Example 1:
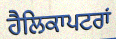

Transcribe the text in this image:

ਹੈਲਿਕਾਪਟਰਾਂ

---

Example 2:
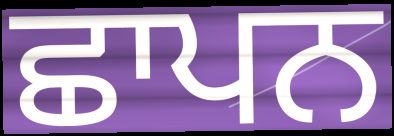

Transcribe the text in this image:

ਛਾਪਨ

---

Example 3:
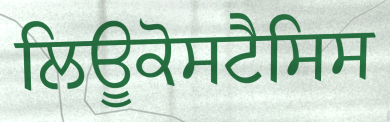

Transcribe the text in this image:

ਲਿਊਕੋਸਟੈਸਿਸ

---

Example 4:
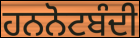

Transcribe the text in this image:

ਹਨਨੋਟਬੰਦੀ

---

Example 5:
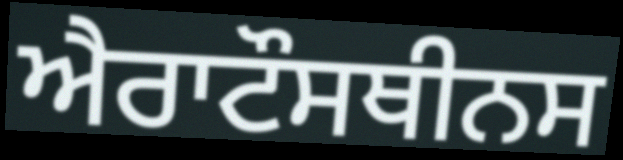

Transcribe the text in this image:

ਐਰਾਟੌਸਥੀਨਸ